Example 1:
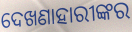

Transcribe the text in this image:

ଦେଖଣାହାରୀଙ୍କର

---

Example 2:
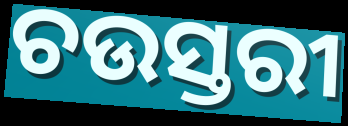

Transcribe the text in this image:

ଚଉସ୍ତରୀ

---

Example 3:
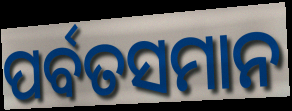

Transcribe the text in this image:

ପର୍ବତସମାନ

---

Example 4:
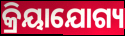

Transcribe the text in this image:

କ୍ରିୟାଯୋଗ୍ୟ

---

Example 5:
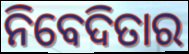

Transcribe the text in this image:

ନିବେଦିତାର